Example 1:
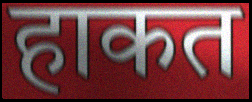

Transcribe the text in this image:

हाकत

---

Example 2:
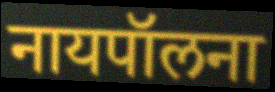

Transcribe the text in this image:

नायपॉलना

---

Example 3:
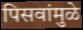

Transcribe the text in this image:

पिसवांमुळे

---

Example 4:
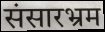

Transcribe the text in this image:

संसारभ्रम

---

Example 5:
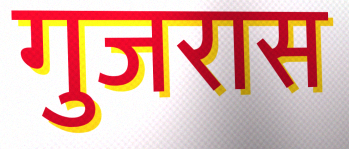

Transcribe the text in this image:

गुजरास